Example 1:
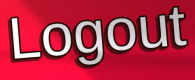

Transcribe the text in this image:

Logout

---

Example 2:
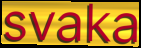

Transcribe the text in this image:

svaka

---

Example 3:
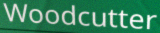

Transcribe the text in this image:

Woodcutter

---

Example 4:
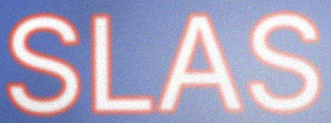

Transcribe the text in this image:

SLAS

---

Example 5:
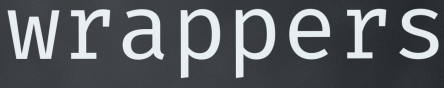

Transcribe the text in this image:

wrappers